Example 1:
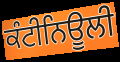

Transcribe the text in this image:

ਕੰਟੀਨਿਊਲੀ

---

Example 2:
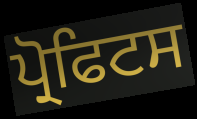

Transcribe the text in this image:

ਪ੍ਰੋਫਿਟਸ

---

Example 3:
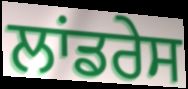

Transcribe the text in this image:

ਲਾਂਡਰੇਸ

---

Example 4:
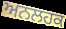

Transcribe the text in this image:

ਅਨਲਹਕ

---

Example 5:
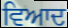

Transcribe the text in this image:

ਵਿਆਦ